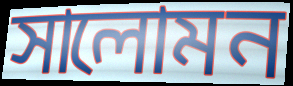
সালোমন